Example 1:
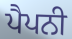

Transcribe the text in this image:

ਪੈਪਨੀ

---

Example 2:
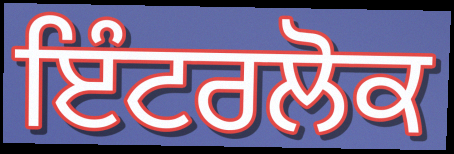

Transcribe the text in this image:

ਇੰਟਰਲੋਕ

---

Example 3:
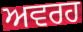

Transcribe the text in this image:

ਅਵਰਹ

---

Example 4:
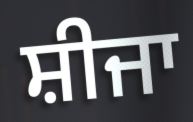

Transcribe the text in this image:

ਸ਼ੀਜਾ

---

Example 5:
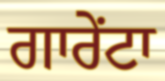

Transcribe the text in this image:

ਗਾਰੇਂਟਾ